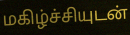
மகிழ்ச்சியுடன்